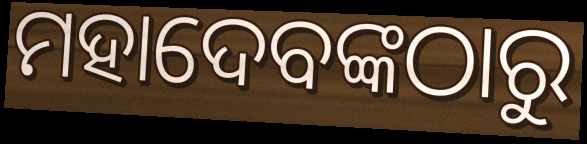
ମହାଦେବଙ୍କଠାରୁ